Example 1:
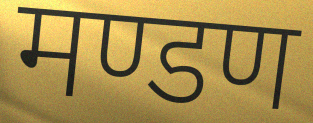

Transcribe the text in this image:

मण्डण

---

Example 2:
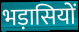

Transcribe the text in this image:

भड़ासियों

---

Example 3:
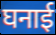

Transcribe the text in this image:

घनाई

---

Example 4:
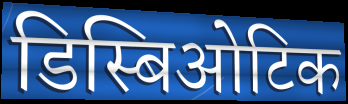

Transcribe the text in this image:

डिस्बिओटिक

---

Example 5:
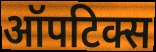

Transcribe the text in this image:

ऑपटिक्स